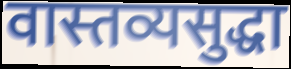
वास्तव्यसुद्धा